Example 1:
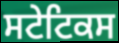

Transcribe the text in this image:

ਸਟੇਟਿਕਸ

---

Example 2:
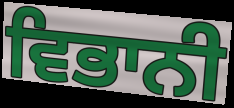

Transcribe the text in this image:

ਵਿਭਾਨੀ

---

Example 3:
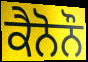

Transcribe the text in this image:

ਕੈਨੋਨੌ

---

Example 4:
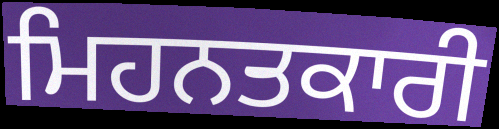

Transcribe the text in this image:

ਮਿਹਨਤਕਾਰੀ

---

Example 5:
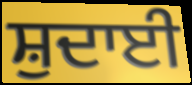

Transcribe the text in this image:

ਸ਼ੁਦਾਈ